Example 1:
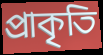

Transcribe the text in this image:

প্ৰাকৃতি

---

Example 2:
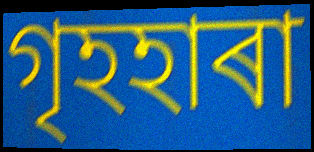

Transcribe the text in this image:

গৃহহাৰা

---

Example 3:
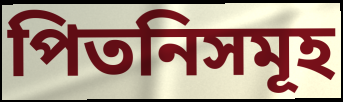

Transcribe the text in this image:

পিতনিসমূহ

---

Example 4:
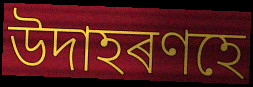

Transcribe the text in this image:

উদাহৰণহে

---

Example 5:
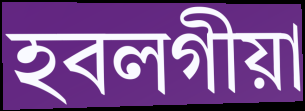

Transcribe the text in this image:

হবলগীয়া